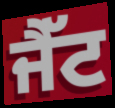
ਜੈੱਟ